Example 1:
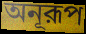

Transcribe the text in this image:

অনূরূপ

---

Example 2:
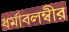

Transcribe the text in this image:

ধর্মাবলম্বীর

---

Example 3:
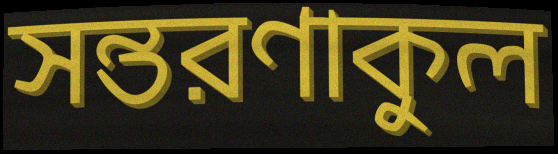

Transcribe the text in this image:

সন্তরণাকুল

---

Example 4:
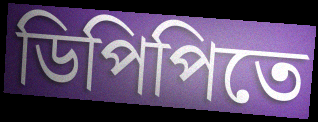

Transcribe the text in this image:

ডিপিপিতে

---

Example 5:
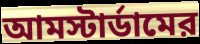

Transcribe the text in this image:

আমস্টার্ডামের